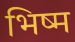
भिष्म